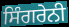
ਸਿੰਗਰੇਨੀ